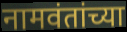
नामवंतांच्या